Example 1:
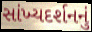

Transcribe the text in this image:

સાંખ્યદર્શનનું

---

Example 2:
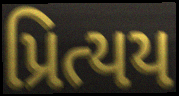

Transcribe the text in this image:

પ્રિત્યય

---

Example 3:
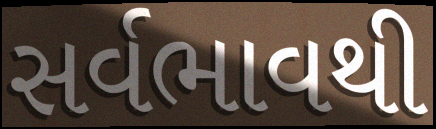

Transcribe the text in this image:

સર્વભાવથી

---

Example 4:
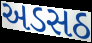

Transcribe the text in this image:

અડસઠ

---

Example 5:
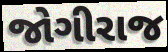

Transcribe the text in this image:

જોગીરાજ